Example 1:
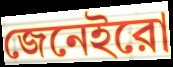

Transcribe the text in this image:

জেনেইরো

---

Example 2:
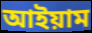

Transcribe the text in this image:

আইয়াম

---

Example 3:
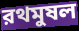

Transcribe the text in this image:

রথমুষল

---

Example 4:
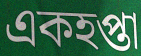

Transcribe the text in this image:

একহপ্তা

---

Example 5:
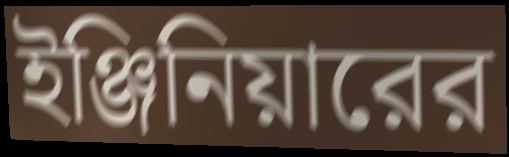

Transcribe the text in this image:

ইঞ্জিনিয়ারের